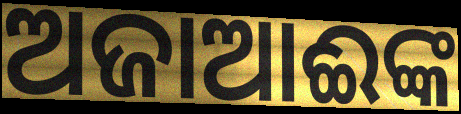
ଅଜାଆଈଙ୍କ